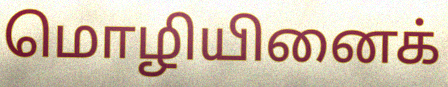
மொழியினைக்